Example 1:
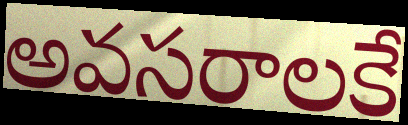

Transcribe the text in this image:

అవసరాలకే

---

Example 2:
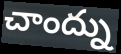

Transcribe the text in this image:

చాంద్ను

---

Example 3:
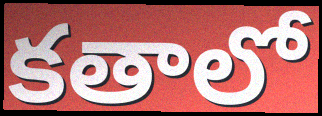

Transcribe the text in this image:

కతాలో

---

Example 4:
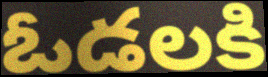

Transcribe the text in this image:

ఓడలకి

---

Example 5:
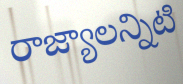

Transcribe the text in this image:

రాజ్యాలన్నిటి